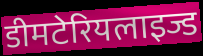
डीमटेरियलाइज्ड